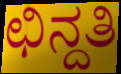
ಛಿನ್ದತಿ